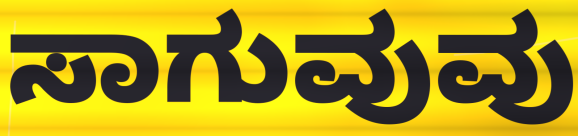
ಸಾಗುವುವು